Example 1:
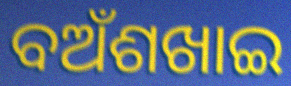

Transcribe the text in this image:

ବଅଁଶଖାଇ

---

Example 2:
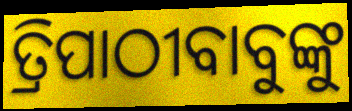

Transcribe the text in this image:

ତ୍ରିପାଠୀବାବୁଙ୍କୁ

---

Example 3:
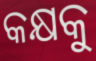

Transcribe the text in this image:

କକ୍ଷକୁ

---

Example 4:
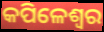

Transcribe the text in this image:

କପିଳେଶ୍ଵର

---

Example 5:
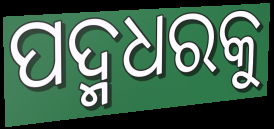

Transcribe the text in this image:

ପଦ୍ମଧରକୁ